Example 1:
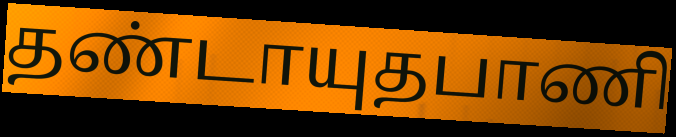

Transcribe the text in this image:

தண்டாயுதபாணி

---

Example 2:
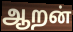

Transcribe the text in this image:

ஆறன்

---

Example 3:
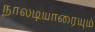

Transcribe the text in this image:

நாலடியாரையும்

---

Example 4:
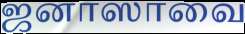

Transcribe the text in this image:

ஜனாஸாவை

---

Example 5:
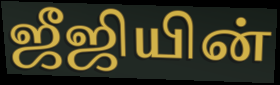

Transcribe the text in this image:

ஜீஜியின்